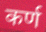
कर्ण